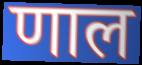
णाल